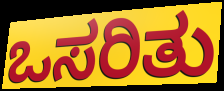
ಒಸರಿತು